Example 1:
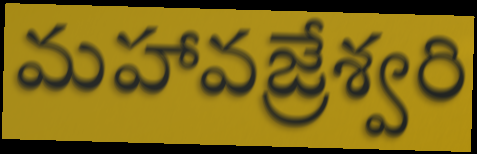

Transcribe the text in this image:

మహావజ్రేశ్వరి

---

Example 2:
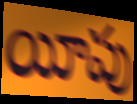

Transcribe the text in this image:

యీపు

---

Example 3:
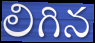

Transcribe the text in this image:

లిగిన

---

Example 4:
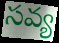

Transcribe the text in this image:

సవ్య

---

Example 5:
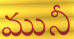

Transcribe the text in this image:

మునీ